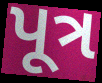
પૂત્ર